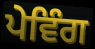
ਪੇਵਿੰਗ